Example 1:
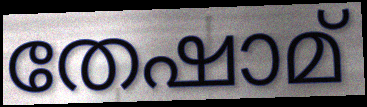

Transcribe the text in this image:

തേഷാമ്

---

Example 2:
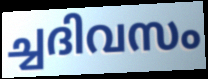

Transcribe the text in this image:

ച്ചദിവസം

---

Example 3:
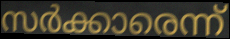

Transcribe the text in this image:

സർക്കാരെന്ന്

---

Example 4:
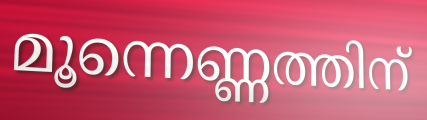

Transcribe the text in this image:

മൂന്നെണ്ണത്തിന്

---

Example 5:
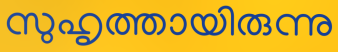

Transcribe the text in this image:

സുഹൃത്തായിരുന്നു